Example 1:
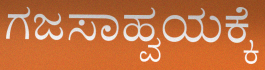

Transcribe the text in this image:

ಗಜಸಾಹ್ವಯಕ್ಕೆ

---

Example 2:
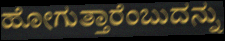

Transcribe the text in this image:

ಹೋಗುತ್ತಾರೆಂಬುದನ್ನು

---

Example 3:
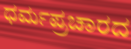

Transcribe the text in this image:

ಧರ್ಮಪ್ರಚಾರದ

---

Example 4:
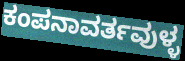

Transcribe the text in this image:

ಕಂಪನಾವರ್ತವುಳ್ಳ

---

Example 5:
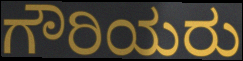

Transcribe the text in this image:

ಗೌರಿಯರು